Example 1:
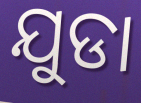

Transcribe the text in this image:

ଯୁଡା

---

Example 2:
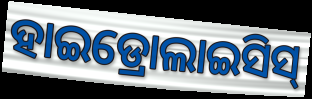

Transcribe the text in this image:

ହାଇଡ୍ରୋଲାଇସିସ୍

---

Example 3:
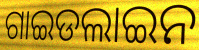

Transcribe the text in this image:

ଗାଇଡଲାଇନ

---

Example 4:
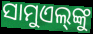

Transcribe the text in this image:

ସାମୁଏଲ୍‌ଙ୍କୁ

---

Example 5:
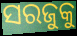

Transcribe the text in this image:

ସରଜୁକୁ